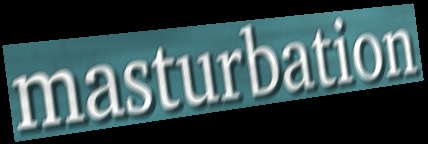
masturbation